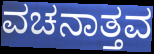
ವಚನಾತ್ತವ